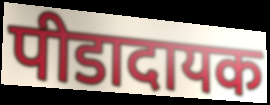
पीडादायक